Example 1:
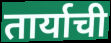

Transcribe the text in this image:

तार्याची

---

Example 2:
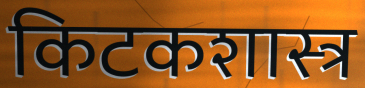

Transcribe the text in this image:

किटकशास्‍त्र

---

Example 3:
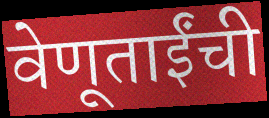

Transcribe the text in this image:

वेणूताईंची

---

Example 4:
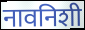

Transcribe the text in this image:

नावनिशी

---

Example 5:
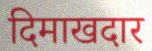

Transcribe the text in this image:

दिमाखदार